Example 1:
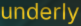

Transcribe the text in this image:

underly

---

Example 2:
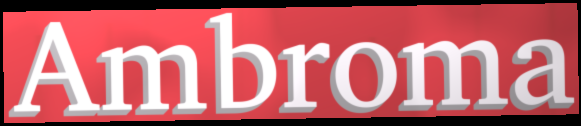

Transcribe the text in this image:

Ambroma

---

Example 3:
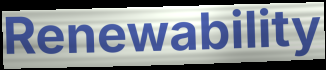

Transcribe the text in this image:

Renewability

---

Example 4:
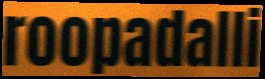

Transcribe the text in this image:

roopadalli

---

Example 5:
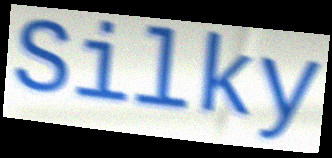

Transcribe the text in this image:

Silky